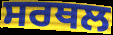
ਸਰਥਲ